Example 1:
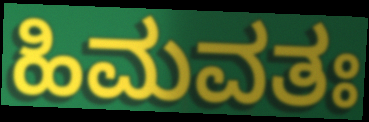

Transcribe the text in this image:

ಹಿಮವತಃ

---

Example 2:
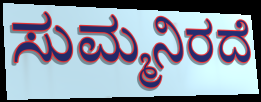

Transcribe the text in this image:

ಸುಮ್ಮನಿರದೆ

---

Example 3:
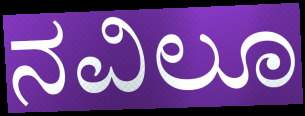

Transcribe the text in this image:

ನವಿಲೂ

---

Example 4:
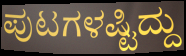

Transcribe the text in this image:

ಪುಟಗಳಷ್ಟಿದ್ದು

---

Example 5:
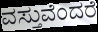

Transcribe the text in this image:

ವಸ್ತುವೆಂದರೆ